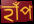
হাঁপ